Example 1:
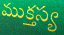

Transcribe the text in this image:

ముక్తస్య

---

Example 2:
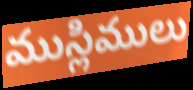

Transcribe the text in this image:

ముస్లిములు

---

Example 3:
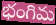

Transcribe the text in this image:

భంగిమ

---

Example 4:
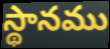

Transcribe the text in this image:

స్థానము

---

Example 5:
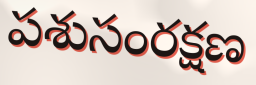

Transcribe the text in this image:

పశుసంరక్షణ